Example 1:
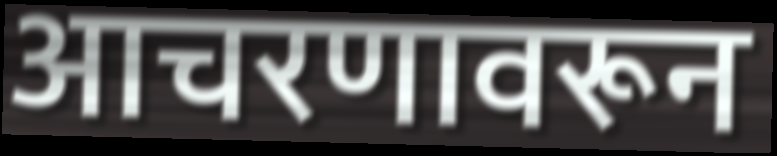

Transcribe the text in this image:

आचरणावरून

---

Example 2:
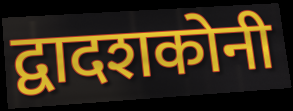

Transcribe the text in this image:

द्वादशकोनी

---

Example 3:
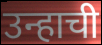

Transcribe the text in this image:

उन्हाची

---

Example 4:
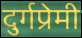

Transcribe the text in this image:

दुर्गप्रेमी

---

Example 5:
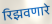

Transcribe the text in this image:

रिझवणारे